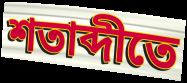
শতাব্দীতে